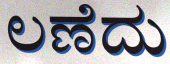
ಲಣೆದು